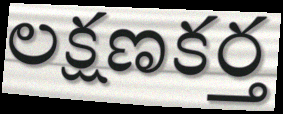
లక్షణకర్త